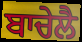
ਬਾਚੇਲੈ